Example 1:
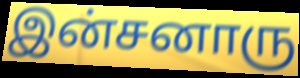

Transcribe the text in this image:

இன்சனாரு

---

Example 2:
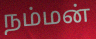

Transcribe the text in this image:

நம்மன்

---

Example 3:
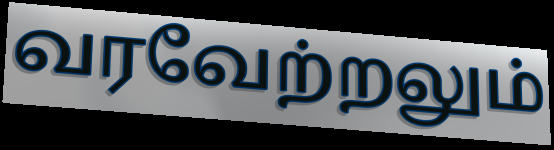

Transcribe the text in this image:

வரவேற்றலும்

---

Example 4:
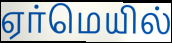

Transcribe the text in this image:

ஏர்மெயில்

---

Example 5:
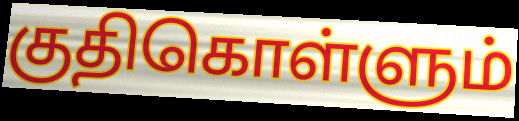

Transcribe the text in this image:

குதிகொள்ளும்